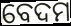
ବେଦମ